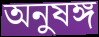
অনুষঙ্গ